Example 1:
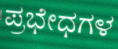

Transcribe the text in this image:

ಪ್ರಭೇಧಗಳ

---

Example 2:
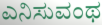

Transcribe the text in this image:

ಎನಿಸುವಂಥ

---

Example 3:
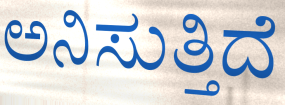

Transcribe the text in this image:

ಅನಿಸುತ್ತಿದೆ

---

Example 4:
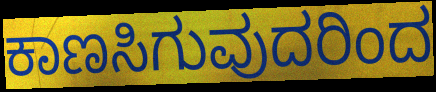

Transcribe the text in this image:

ಕಾಣಸಿಗುವುದರಿಂದ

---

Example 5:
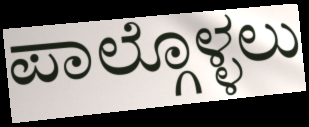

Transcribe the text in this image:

ಪಾಲ್ಗೊಳ್ಳಲು